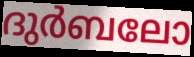
ദുർബലോ